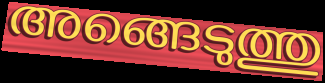
അങ്ങെടുത്തു